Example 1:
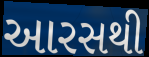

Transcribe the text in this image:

આરસથી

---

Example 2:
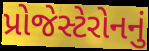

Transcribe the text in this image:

પ્રોજેસ્ટેરોનનું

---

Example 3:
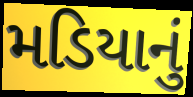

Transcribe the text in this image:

મડિયાનું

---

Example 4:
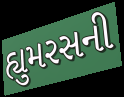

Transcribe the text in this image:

હ્યુમરસની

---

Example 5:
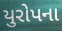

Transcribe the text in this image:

યુરોપના